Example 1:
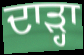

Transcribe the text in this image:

ਦਾੜ੍ਹਾ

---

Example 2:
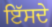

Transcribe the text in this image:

ਇੱਸਦੇ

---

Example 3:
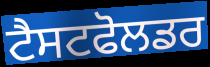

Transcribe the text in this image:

ਟੈਸਟਫੋਲਡਰ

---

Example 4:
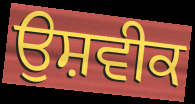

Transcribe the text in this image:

ਉਸ਼ਵੀਕ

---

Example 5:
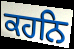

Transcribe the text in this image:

ਕਹਨਿ